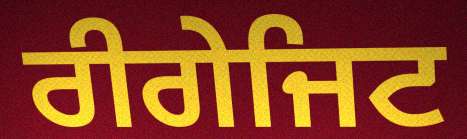
ਰੀਗੇਜਿਟ